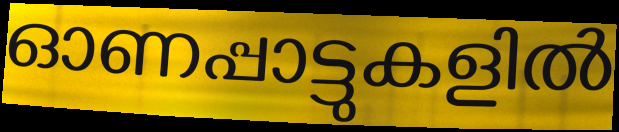
ഓണപ്പാട്ടുകളിൽ